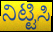
ನಿಟ್ಟಿಸಿ